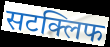
सटक्लिफ